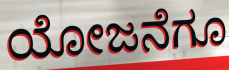
ಯೋಜನೆಗೂ